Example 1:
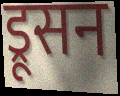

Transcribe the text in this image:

ड्रूसन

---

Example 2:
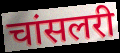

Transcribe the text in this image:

चांसलरी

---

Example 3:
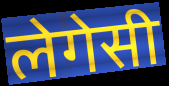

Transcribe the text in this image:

लेगेसी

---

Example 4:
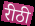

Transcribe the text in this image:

रीठी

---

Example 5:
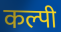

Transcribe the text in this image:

कल्पी